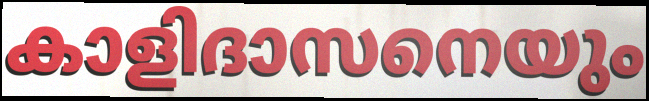
കാളിദാസനെയും